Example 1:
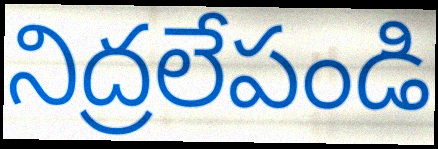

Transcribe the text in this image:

నిద్రలేపండి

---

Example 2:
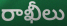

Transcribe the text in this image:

రాఖీలు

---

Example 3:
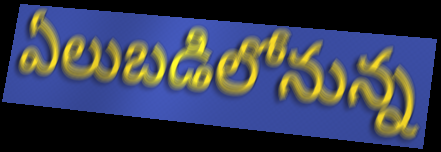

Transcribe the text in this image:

ఏలుబడిలోనున్న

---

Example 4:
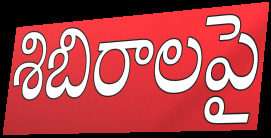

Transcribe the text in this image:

శిబిరాలపై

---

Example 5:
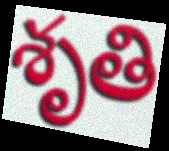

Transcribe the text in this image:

శృతి